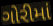
ગોરીમાં